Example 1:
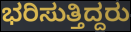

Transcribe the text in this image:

ಭರಿಸುತ್ತಿದ್ದರು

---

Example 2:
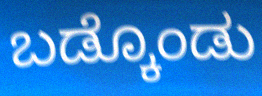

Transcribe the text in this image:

ಬಡ್ಕೊಂಡು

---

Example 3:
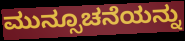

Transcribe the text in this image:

ಮುನ್ಸೂಚನೆಯನ್ನು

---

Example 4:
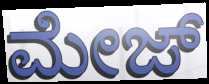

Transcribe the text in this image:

ಮೇಜ್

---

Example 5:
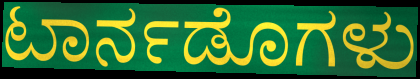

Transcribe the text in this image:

ಟಾರ್ನಡೊಗಳು